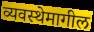
व्यवस्थेमागील